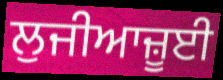
ਲੁਜੀਆਜ਼ੂਈ